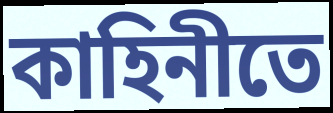
কাহিনীতে